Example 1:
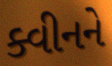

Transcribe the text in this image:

ક્વીનને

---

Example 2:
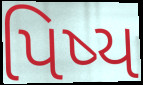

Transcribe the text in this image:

પિષ્ય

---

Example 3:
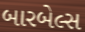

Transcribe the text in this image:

બારબેલ્સ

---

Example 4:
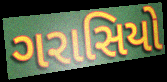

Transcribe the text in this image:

ગરાસિયો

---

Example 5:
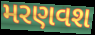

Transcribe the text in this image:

મરણવશ